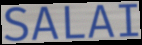
SALAI